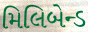
મિલિબેન્ડ